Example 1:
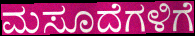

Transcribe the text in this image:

ಮಸೂದೆಗಳಿಗೆ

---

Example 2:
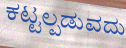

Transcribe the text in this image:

ಕಟ್ಟಲ್ಪಡುವದು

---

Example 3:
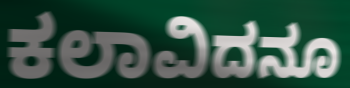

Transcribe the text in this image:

ಕಲಾವಿದನೂ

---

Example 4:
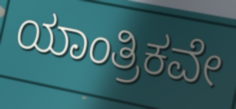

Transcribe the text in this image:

ಯಾಂತ್ರಿಕವೇ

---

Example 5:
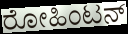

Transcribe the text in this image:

ರೋಹಿಂಟನ್